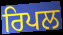
ਰਿਪਲ